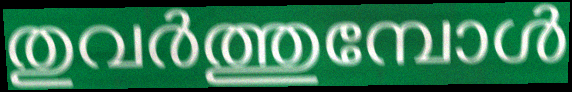
തുവർത്തുമ്പോൾ